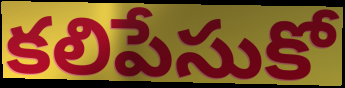
కలిపేసుకో